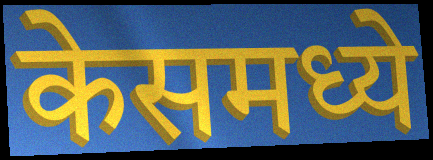
केसमध्ये